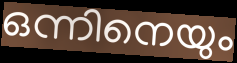
ഒന്നിനെയും